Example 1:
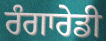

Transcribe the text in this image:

ਰੰਗਾਰੇਡੀ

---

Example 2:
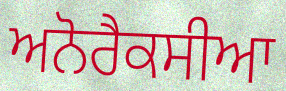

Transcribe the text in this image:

ਅਨੋਰੈਕਸੀਆ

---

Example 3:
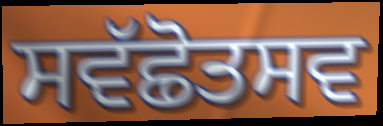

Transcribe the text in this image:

ਸਵੱਛੋਤਸਵ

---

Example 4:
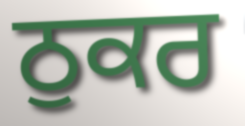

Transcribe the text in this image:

ਠੁਕਰ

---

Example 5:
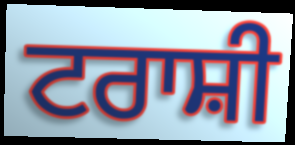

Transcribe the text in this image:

ਟਰਾਸ਼ੀ